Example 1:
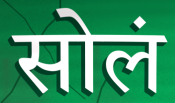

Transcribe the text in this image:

सोलं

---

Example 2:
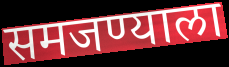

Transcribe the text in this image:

समजण्याला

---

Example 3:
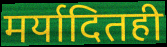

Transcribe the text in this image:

मर्यादितही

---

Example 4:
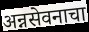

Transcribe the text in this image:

अन्नसेवनाचा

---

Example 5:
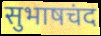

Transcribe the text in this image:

सुभाषचंद